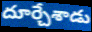
దూర్చేశాడు